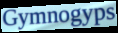
Gymnogyps